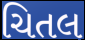
ચિતલ